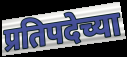
प्रतिपदेच्या